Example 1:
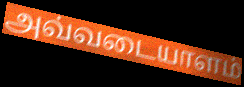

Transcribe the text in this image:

அவ்வடையாளம்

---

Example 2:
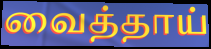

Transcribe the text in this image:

வைத்தாய்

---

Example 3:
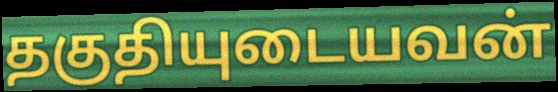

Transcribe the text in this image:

தகுதியுடையவன்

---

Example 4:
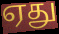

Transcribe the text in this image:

ஏது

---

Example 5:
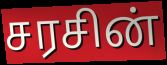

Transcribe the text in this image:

சரசின்